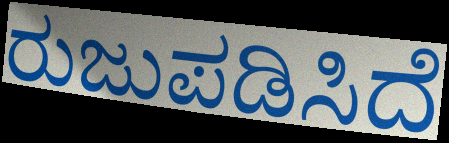
ರುಜುಪಡಿಸಿದೆ